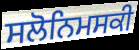
ਸਲੋਨਿਮਸਕੀ